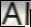
AI